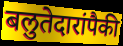
बलुतेदारांपैकी